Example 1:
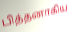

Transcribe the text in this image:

பித்தனாகிய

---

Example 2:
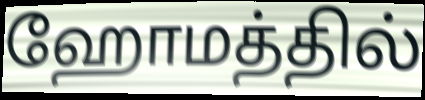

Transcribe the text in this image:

ஹோமத்தில்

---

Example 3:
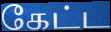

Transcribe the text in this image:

கேட்ட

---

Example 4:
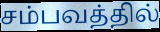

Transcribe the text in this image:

சம்பவத்தில்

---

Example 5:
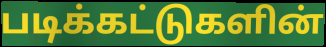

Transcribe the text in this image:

படிக்கட்டுகளின்